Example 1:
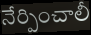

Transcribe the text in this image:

నేర్పించాలీ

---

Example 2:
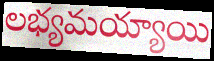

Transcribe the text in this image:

లభ్యమయ్యాయి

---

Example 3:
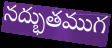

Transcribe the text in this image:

నద్భుతముగ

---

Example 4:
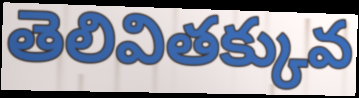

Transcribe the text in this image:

తెలివితక్కువ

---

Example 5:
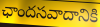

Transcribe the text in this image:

ఛాందసవాదానికి